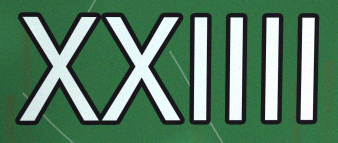
XXIIII